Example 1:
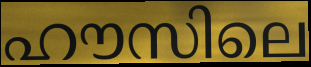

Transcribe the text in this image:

ഹൗസിലെ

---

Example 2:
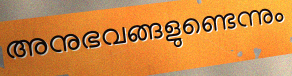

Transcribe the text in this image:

അനുഭവങ്ങളുണ്ടെന്നും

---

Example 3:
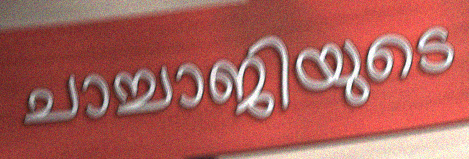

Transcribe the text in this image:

ചാച്ചാജിയുടെ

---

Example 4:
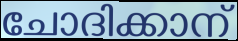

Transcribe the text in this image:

ചോദിക്കാന്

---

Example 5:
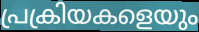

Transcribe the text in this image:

പ്രക്രിയകളെയും